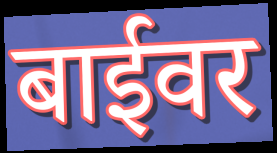
बाईवर